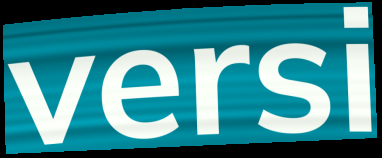
versi